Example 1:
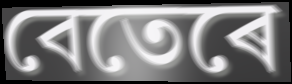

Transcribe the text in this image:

বেতেৰে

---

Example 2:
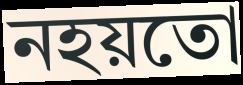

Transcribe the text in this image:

নহয়তো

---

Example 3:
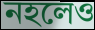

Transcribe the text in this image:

নহলেও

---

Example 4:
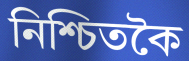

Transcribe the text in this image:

নিশ্চিতকৈ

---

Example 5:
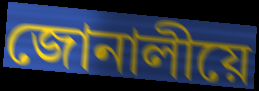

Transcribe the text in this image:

জোনালীয়ে